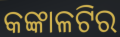
କଙ୍କାଳଟିର